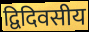
द्विदिवसीय